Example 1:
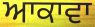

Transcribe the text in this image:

ਆਕਾਵਾ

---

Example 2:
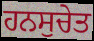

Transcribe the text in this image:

ਹਨਸੁਚੇਤ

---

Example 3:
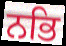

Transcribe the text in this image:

ਨਭਿ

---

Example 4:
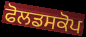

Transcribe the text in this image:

ਫੋਲਡਸਕੋਪ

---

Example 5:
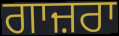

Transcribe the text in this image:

ਗਾਜ਼ਰਾ